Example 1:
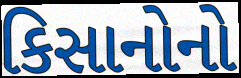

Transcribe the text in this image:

કિસાનોનો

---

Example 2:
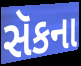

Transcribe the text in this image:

સૅકના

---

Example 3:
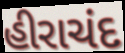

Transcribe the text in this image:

હીરાચંદ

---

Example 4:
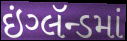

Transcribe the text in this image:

ઇંગ્લૅન્ડમાં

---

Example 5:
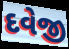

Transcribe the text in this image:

દવેજી